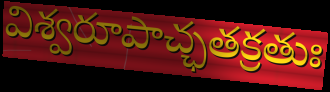
విశ్వరూపాచ్ఛతక్రతుః